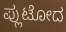
ಪ್ಲುಟೋದ